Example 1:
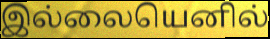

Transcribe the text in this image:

இல்லையெனில்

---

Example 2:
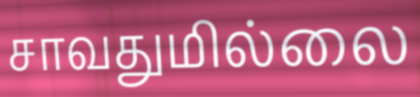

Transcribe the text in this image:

சாவதுமில்லை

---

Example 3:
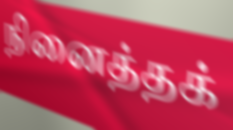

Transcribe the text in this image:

நினைத்தக்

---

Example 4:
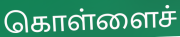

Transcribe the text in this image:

கொள்ளைச்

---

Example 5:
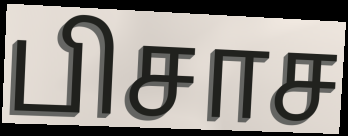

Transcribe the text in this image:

பிசாச